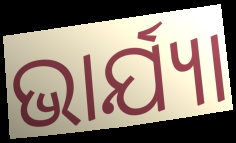
ଭାର୍ଯ୍ୟା